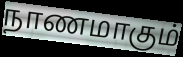
நாணமாகும்